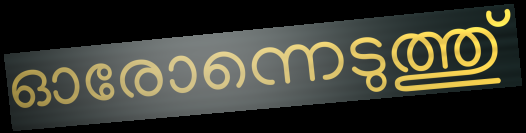
ഓരോന്നെടുത്തു്